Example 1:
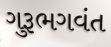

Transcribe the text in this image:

ગુરૂભગવંત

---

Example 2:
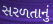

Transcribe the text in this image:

સરળતાનું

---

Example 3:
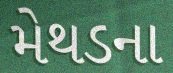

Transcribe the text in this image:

મેથડના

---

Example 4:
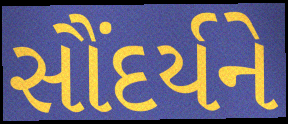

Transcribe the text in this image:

સૌંદર્યને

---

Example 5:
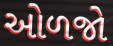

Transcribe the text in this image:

ઓળજો